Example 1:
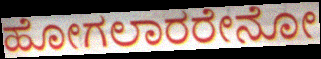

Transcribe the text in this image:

ಹೋಗಲಾರರೇನೋ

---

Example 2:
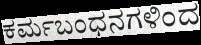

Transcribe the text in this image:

ಕರ್ಮಬಂಧನಗಳಿಂದ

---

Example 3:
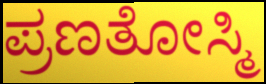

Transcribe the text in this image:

ಪ್ರಣತೋಸ್ಮಿ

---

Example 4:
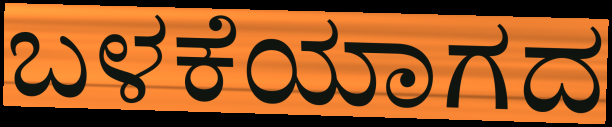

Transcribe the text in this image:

ಬಳಕೆಯಾಗದ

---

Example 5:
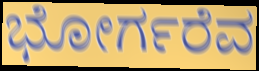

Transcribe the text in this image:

ಭೋರ್ಗರೆವ